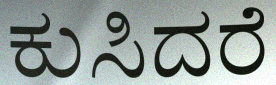
ಕುಸಿದರೆ